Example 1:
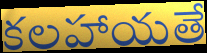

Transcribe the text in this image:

కలహాయతే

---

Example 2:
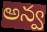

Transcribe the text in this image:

అన్వ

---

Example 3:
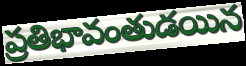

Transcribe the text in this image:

ప్రతిభావంతుడయిన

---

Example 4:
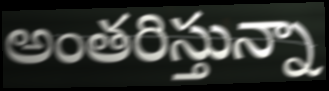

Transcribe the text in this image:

అంతరిస్తున్నా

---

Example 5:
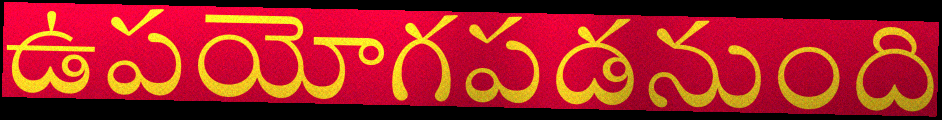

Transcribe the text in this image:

ఉపయోగపడనుంది